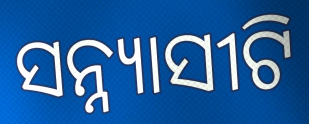
ସନ୍ନ୍ୟାସୀଟି